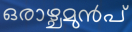
ഒരാഴ്ചമുൻപ്